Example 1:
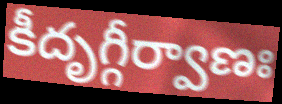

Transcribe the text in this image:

కీదృగ్గీర్వాణః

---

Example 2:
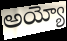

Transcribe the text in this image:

అయ్యో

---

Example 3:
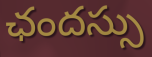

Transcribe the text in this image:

ఛందస్సు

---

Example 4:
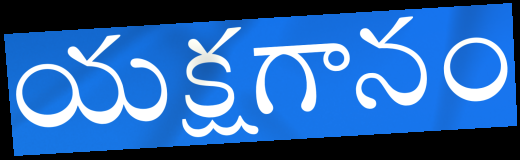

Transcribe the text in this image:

యక్షగానం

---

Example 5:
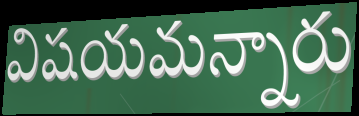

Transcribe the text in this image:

విషయమన్నారు